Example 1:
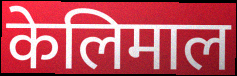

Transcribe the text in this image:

केलिमाल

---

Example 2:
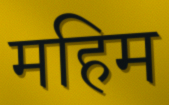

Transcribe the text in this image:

महिम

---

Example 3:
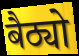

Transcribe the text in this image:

बैठ्यो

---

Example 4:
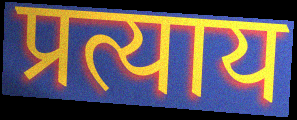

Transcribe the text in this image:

प्रत्याय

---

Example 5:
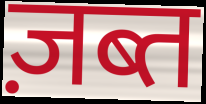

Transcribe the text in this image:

ज़ब्त